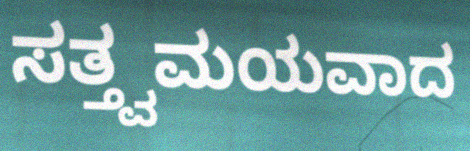
ಸತ್ತ್ವಮಯವಾದ